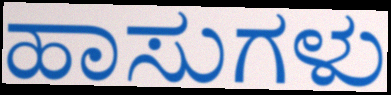
ಹಾಸುಗಳು